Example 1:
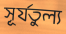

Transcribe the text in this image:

সূর্যতুল্য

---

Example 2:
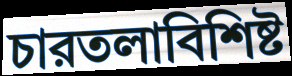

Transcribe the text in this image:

চারতলাবিশিষ্ট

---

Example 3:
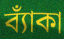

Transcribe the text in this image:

ব্যাঁকা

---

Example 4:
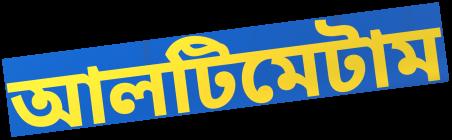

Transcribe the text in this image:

আলটিমেটাম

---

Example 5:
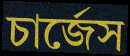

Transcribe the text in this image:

চার্জেস